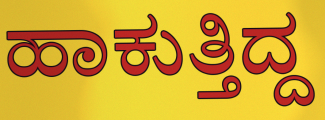
ಹಾಕುತ್ತಿದ್ದ